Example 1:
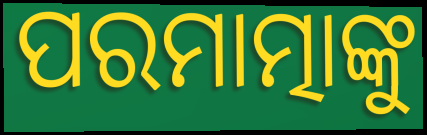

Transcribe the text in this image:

ପରମାତ୍ମାଙ୍କୁ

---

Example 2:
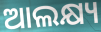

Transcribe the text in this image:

ଆଲକ୍ଷ୍ୟ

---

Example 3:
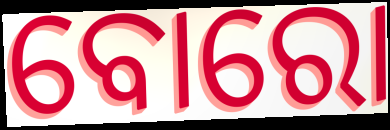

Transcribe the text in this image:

ବୋରୋ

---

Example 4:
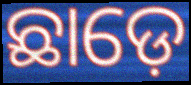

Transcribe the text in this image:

ଛାଡ଼େ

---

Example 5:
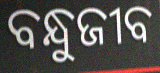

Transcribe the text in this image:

ବନ୍ଧୁଜୀବ